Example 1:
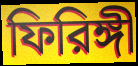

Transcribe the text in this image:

ফিরিঙ্গী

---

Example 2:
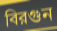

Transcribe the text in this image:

বিরগুন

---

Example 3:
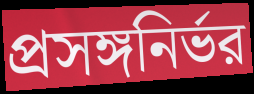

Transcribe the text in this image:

প্রসঙ্গনির্ভর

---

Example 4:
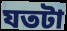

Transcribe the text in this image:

যতটা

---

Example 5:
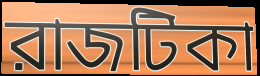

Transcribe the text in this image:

রাজটিকা